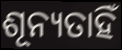
ଶୂନ୍ୟତାହିଁ